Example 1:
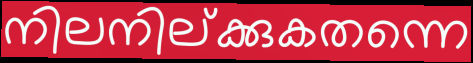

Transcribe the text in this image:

നിലനില്ക്കുകതന്നെ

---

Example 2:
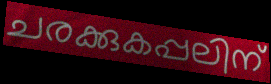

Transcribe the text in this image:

ചരക്കുകപ്പലിന്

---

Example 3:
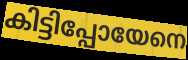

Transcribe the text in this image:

കിട്ടിപ്പോയേനെ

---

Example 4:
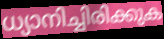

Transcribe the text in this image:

ധ്യാനിച്ചിരിക്കുക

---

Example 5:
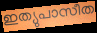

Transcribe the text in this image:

ഇത്യുപാസീത